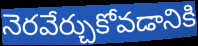
నెరవేర్చుకోవడానికి